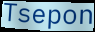
Tsepon